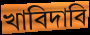
খাবিদাবি